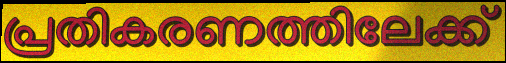
പ്രതികരണത്തിലേക്ക്